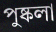
পুষ্কলা